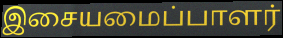
இசையமைப்பாளர்